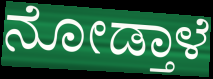
ನೋಡ್ತಾಳೆ